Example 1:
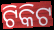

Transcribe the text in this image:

ଟିକିଟ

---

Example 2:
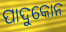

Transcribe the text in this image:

ପାଦୁକୋନ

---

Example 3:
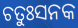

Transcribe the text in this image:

ଚତୁଃସନକ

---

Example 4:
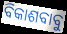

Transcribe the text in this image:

ବିକାଶବାବୁ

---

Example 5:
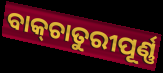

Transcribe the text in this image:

ବାକ୍‌ଚାତୁରୀପୂର୍ଣ୍ଣ